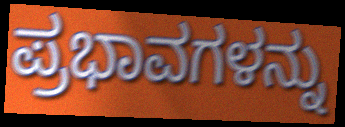
ಪ್ರಭಾವಗಳನ್ನು